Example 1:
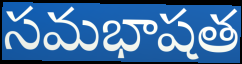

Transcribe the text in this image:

సమభాషత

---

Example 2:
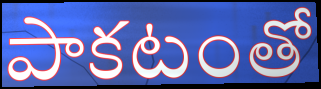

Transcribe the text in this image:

పాకటంతో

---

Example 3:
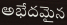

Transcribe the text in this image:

అభేదమైన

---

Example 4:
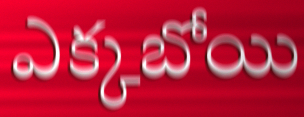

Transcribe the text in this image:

ఎక్కబోయి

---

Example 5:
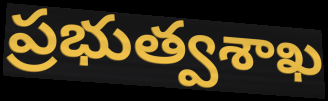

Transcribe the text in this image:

ప్రభుత్వశాఖ